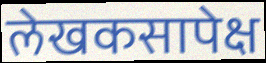
लेखकसापेक्ष